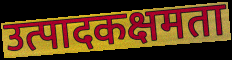
उत्पादकक्षमता